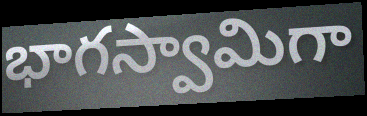
భాగస్వామిగా